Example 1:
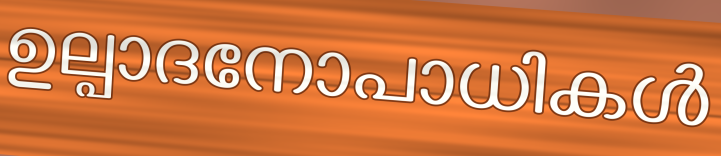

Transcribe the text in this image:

ഉല്പാദനോപാധികൾ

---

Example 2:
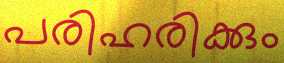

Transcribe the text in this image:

പരിഹരിക്കും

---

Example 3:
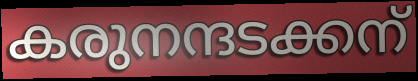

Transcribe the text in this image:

കരുനന്ദടക്കന്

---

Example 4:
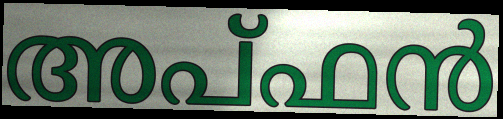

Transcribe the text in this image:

അപ്ഫൻ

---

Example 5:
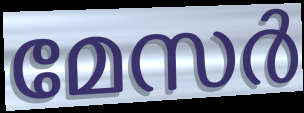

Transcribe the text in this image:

മേസർ